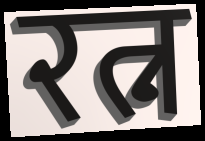
रत्न